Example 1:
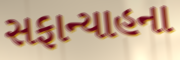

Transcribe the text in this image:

સફાન્યાહના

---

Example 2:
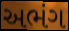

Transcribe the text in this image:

અભંગ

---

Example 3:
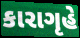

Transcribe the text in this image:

કારાગૃહે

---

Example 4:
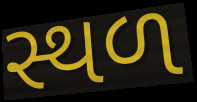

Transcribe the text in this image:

સ્થળ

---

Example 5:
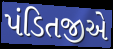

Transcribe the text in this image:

પંડિતજીએ